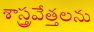
శాస్త్రవేత్తలను